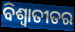
ବିଶ୍ଵାତୀତର